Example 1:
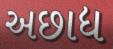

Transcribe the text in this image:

અછાદ્ય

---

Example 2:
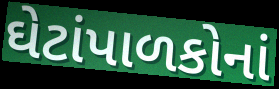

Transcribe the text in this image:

ઘેટાંપાળકોનાં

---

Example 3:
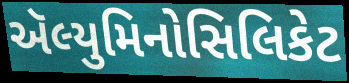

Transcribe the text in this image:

ઍલ્યુમિનોસિલિકેટ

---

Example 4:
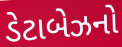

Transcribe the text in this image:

ડેટાબેઝનો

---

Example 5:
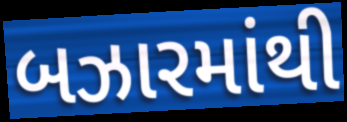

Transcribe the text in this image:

બઝારમાંથી